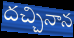
దచ్చినాన